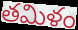
తమిళం